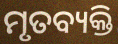
ମୃତବ୍ୟକ୍ତି